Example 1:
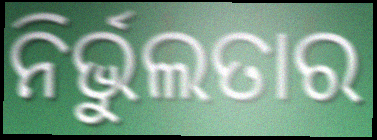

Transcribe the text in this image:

ନିର୍ଭୁଲତାର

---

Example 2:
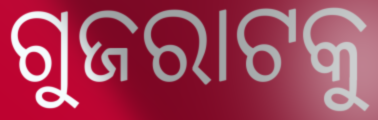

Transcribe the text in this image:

ଗୁଜରାଟକୁ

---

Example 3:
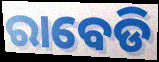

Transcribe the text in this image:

ରାବେଡି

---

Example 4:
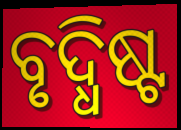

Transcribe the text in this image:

ବୃଦ୍ଧିଷ୍ଟ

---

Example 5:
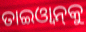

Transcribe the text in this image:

ତାଇଓ୍ବାନ୍‌କୁ